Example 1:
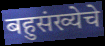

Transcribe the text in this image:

बहुसंख्येचे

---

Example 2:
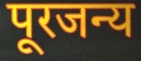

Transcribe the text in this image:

पूरजन्य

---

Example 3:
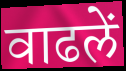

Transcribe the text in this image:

वाढलें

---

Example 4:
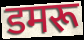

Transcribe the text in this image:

डमरू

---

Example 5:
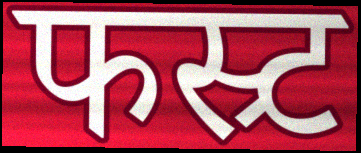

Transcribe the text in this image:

फस्र्ट